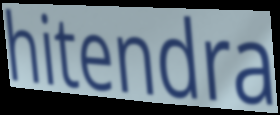
hitendra